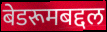
बेडरूमबद्दल